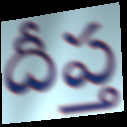
దీప్త